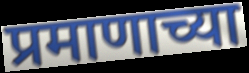
प्रमाणाच्या